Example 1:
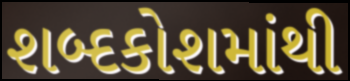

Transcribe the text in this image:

શબ્દકોશમાંથી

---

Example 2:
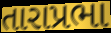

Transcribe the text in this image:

તારાપ્રભા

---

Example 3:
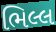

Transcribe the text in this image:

ભિલ્લ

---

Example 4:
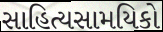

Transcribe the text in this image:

સાહિત્યસામયિકો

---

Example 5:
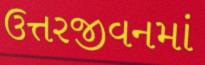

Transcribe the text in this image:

ઉત્તરજીવનમાં